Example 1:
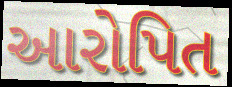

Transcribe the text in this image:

આરોપિત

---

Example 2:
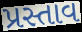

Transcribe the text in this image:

પ્રસ્તાવ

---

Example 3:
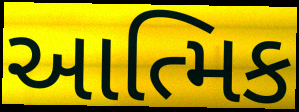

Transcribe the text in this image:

આત્મિક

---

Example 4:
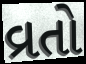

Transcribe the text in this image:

વ્રતો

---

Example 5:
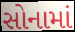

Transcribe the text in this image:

સોનામાં